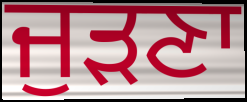
ਜੁੜਣਾ